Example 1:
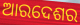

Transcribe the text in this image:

ଆରଦେଶର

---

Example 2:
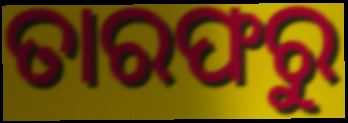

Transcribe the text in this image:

ତାରଫରୁ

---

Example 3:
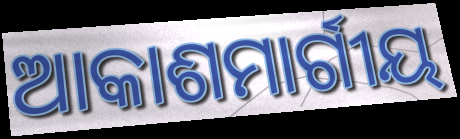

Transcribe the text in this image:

ଆକାଶମାର୍ଗୀୟ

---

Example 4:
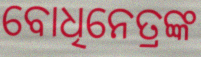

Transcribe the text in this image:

ବୋଧିନେତ୍ରଙ୍କ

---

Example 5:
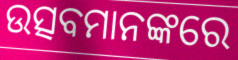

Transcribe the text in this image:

ଉତ୍ସବମାନଙ୍କରେ